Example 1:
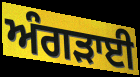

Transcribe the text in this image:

ਅੰਗੜਾਈ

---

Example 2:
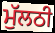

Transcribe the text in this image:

ਮੁੱਲਠੀ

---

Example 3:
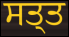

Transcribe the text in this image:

ਸਤ੍ਤ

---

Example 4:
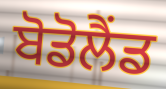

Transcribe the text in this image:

ਬੋਡੋਲੈਂਡ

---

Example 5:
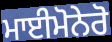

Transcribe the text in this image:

ਮਾਈਮੋਨੇਰੋ